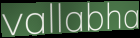
vallabha